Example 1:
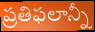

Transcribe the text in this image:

ప్రతిఫలాన్నీ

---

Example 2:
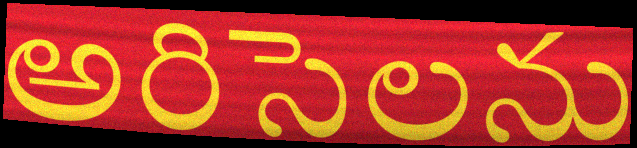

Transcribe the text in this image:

అరిసెలను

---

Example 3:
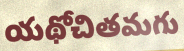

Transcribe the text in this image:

యథోచితమగు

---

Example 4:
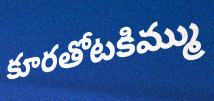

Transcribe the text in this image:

కూరతోటకిమ్ము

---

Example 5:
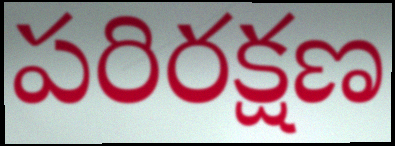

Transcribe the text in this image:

పరిరక్షణ